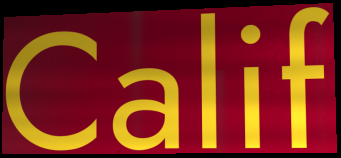
Calif